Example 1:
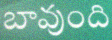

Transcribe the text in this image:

బావుంది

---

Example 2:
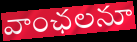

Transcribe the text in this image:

వాంఛలనూ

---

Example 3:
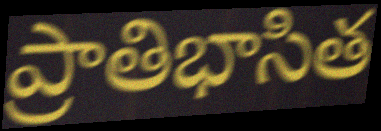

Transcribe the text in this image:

ప్రాతిభాసిత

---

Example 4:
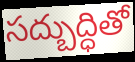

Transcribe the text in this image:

సద్బుద్ధితో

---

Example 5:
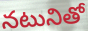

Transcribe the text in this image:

నటునితో